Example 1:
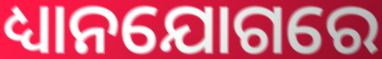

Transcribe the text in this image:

ଧ୍ୟାନଯୋଗରେ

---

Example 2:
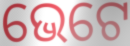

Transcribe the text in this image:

ଭେଟେ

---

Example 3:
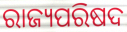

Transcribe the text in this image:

ରାଜ୍ୟପରିଷଦ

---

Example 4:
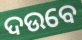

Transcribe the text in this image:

ଦଉବେ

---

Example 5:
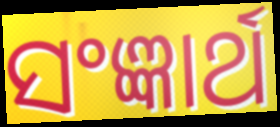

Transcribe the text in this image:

ସଂଜ୍ଞାର୍ଥ